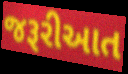
જરૂરીઆત